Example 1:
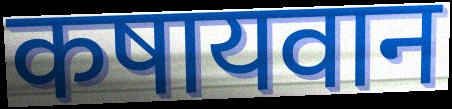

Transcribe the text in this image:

कषायवान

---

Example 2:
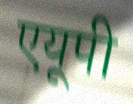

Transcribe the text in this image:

एयूपी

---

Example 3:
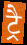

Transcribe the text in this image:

ट्रै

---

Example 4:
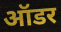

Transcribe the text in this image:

ऑडर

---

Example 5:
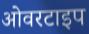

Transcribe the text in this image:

ओवरटाइप